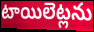
టాయిలెట్లను